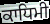
ਕਾਧਿਮੀ